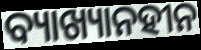
ବ୍ୟାଖ୍ୟାନହୀନ